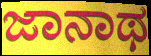
ಜಾನಾಥ